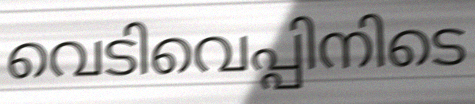
വെടിവെപ്പിനിടെ